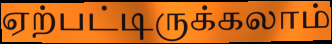
ஏற்பட்டிருக்கலாம்